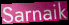
Sarnaik